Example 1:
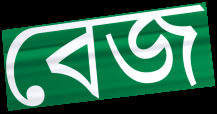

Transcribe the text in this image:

বেজ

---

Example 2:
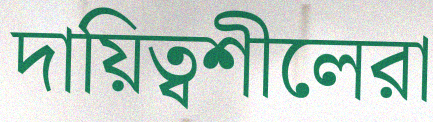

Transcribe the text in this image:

দায়িত্বশীলেরা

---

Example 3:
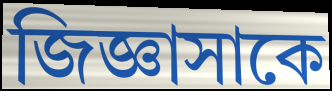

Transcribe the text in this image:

জিজ্ঞাসাকে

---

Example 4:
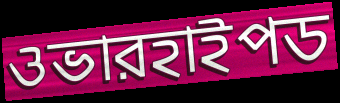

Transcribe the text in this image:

ওভারহাইপড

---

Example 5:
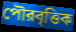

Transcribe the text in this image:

পৌরবৃত্তিক